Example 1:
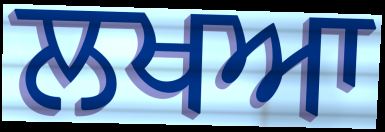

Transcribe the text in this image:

ਲਖਆ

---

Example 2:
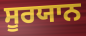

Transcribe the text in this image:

ਸੂਰਯਾਨ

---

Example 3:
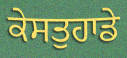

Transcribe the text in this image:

ਕੇਸਤੁਹਾਡੇ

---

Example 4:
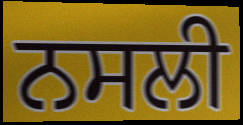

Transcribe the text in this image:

ਨਸਲੀ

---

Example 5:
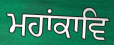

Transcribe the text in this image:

ਮਹਾਂਕਾਵਿ